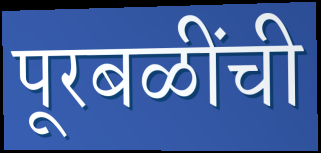
पूरबळींची